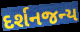
દર્શનજન્ય